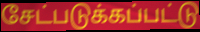
சேட்படுக்கப்பட்டு